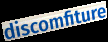
discomfiture